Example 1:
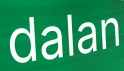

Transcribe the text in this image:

dalan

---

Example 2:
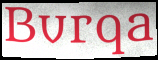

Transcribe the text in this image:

Burqa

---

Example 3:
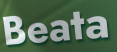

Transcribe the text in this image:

Beata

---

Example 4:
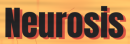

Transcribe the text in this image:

Neurosis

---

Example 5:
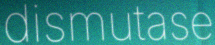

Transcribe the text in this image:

dismutase